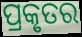
ପ୍ରକୃତର